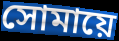
সোমায়ে